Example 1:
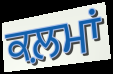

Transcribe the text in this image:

ਕਲ਼ਮਾਂ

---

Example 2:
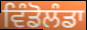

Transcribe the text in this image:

ਵਿੰਡੋਲੰਡਾ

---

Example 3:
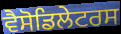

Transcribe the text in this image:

ਵੈਸੋਡਿਲੇਟਰਸ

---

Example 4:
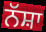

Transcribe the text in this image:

ਨੱਸ਼ਾ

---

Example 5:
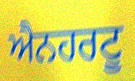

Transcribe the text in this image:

ਐਨਹਰਟੂ